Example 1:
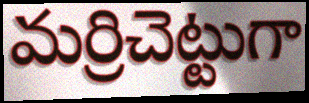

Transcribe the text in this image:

మర్రిచెట్టుగా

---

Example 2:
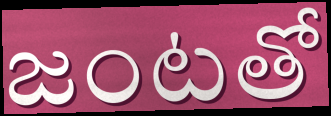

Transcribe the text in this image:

జంటతో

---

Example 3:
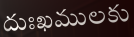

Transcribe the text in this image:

దుఃఖములకు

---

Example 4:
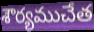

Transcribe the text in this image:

శౌర్యముచేత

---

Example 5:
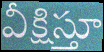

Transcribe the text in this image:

వీక్షిస్తూ